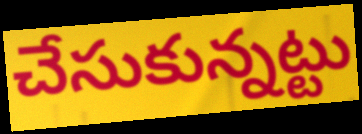
చేసుకున్నట్టు